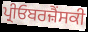
ਪ੍ਰੀਓਬਰਜ਼ੈਂਸਕੀ